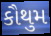
કૌથુમ